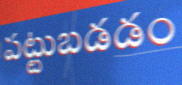
పట్టుబడడం